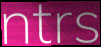
ntrs